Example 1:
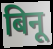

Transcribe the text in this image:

बिनू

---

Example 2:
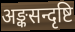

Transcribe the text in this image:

अङ्कसन्दृष्टि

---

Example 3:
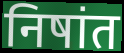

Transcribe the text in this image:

निषांत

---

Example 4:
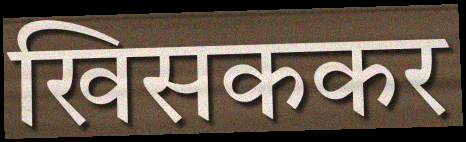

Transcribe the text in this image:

खिसककर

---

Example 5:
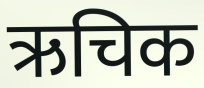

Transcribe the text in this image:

ऋचिक